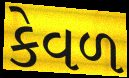
કેવળ